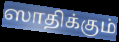
ஸாதிக்கும்